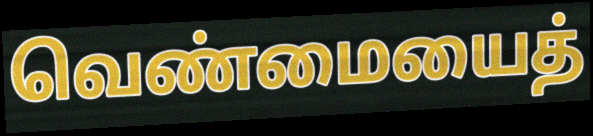
வெண்மையைத்